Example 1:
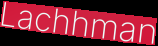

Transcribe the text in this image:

Lachhman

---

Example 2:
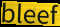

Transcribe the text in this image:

bleef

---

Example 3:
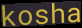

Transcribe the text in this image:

kosha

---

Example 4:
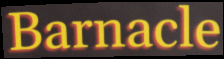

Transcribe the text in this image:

Barnacle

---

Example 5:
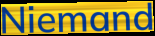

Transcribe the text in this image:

Niemand